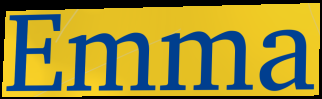
Emma